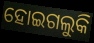
ହୋଇଗଲୁକି